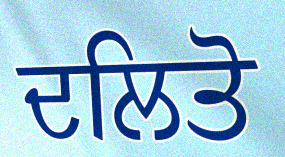
ਦਲਿਤੋ